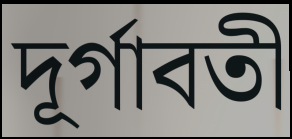
দূর্গাবতী